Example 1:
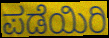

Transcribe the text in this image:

ಪಡೆಯಿರಿ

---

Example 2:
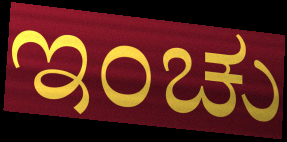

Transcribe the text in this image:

ಇಂಚು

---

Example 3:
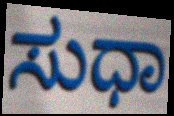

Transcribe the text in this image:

ಸುಧಾ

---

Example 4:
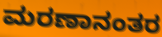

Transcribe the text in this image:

ಮರಣಾನಂತರ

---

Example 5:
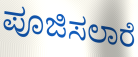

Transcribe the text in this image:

ಪೂಜಿಸಲಾರೆ